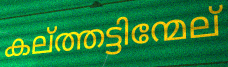
കല്ത്തട്ടിന്മേല്